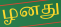
ழனது